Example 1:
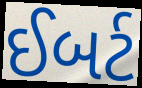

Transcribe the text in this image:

ઈબર્ટ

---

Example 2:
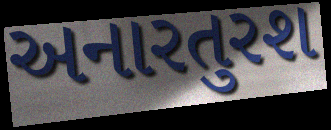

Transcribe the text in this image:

અનારતુરશ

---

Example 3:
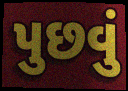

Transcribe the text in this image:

પુછવું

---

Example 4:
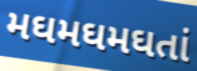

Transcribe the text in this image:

મઘમઘમઘતાં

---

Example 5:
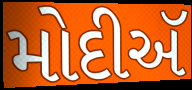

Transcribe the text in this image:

મોદીઍ